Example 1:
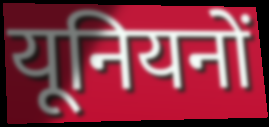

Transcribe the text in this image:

यूनियनों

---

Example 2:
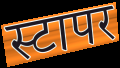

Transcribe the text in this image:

स्टापर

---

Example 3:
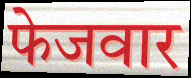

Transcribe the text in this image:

फेजवार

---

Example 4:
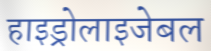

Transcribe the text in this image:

हाइड्रोलाइजेबल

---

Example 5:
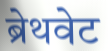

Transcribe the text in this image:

ब्रेथवेट